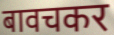
बावचकर